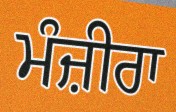
ਮੰਜ਼ੀਰਾ